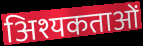
अिश्यकताओं